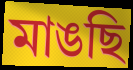
মাঙছি